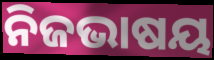
ନିଜଭାଷୟ